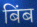
बिंब